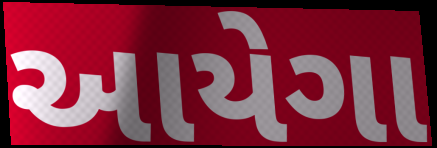
આયેગા